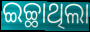
ଇଚ୍ଛାଥିଲା